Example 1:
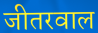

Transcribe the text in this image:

जीतरवाल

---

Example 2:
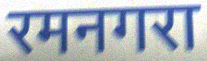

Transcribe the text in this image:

रमनगरा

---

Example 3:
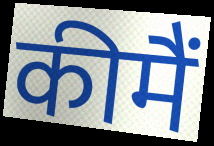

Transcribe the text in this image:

कीमैं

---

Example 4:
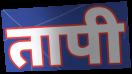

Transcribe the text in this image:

तापी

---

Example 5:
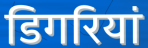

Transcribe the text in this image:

डिगरियां